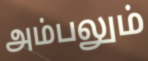
அம்பலும்